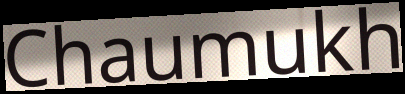
Chaumukh